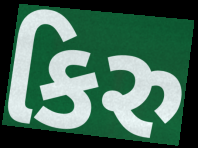
કિરુ